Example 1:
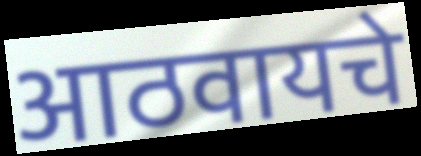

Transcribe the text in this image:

आठवायचे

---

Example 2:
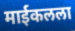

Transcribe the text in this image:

माईकलला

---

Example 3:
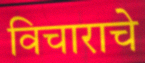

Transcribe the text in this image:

विचाराचे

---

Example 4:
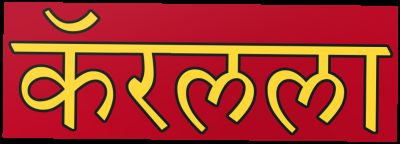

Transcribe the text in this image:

कॅरलला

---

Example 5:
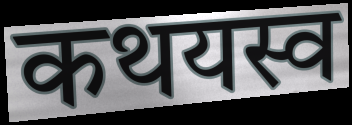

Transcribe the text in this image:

कथयस्व